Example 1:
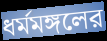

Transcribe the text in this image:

ধর্মমঙ্গলের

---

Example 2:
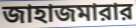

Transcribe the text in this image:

জাহাজমারার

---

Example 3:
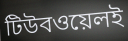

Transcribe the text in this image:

টিউবওয়েলই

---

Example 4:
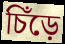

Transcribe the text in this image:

চিঁড়ে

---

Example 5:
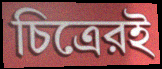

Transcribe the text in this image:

চিত্রেরই